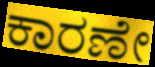
ಕಾರಣೇ